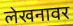
लेखनावर